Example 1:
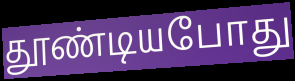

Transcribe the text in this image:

தூண்டியபோது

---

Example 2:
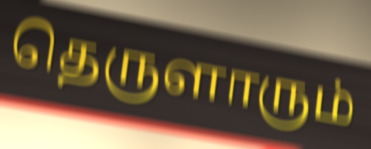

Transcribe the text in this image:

தெருளாரும்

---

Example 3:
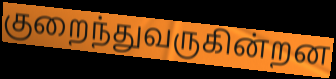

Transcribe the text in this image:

குறைந்துவருகின்றன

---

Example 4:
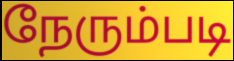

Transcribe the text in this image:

நேரும்படி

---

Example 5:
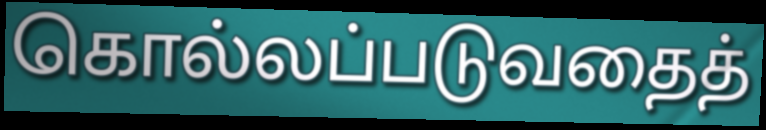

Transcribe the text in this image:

கொல்லப்படுவதைத்